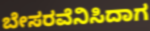
ಬೇಸರವೆನಿಸಿದಾಗ